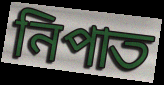
নিপাত